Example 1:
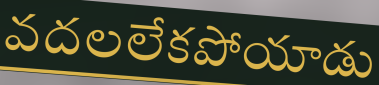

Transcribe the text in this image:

వదలలేకపోయాడు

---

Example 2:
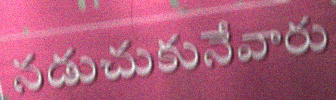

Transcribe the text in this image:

నడుచుకునేవారు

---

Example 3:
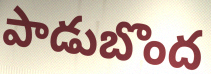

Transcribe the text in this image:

పాడుబొంద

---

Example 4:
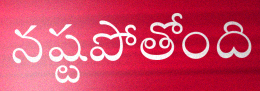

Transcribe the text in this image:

నష్టపోతోంది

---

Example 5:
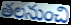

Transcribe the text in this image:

తలనుంచి